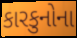
કારકુનોના